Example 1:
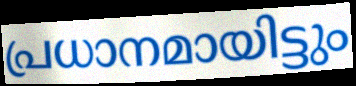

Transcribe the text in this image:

പ്രധാനമായിട്ടും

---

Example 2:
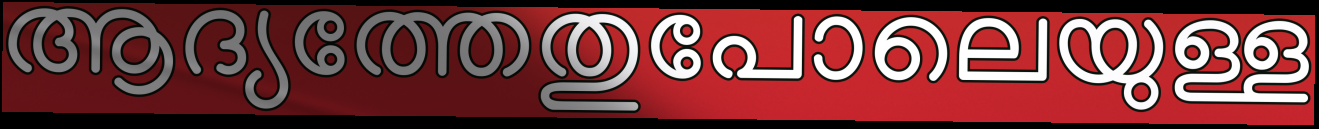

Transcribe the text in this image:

ആദ്യത്തേതുപോലെയുള്ള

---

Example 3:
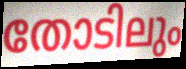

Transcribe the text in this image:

തോടിലും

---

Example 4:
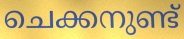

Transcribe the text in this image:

ചെക്കനുണ്ട്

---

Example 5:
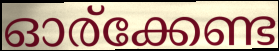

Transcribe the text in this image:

ഓര്ക്കേണ്ട